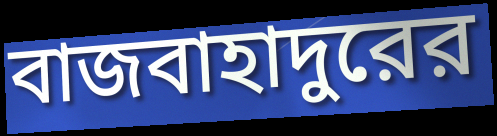
বাজবাহাদুরের